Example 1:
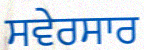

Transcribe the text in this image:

ਸਵੇਰਸਾਰ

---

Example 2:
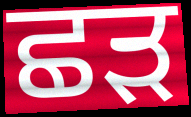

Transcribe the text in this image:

ਛੜ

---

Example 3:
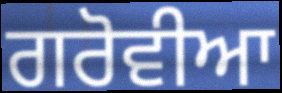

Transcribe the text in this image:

ਗਰੋਵੀਆ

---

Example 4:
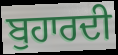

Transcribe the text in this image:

ਬੁਹਾਰਦੀ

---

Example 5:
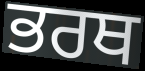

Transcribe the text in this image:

ਭਰਥ